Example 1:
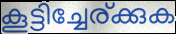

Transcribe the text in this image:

കൂട്ടിച്ചേര്ക്കുക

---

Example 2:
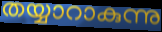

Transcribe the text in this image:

തയ്യാറാകുന്നു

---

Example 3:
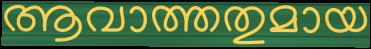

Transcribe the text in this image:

ആവാത്തതുമായ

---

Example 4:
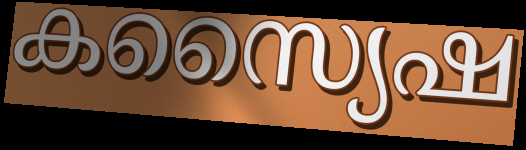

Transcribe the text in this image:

കസ്യൈഷ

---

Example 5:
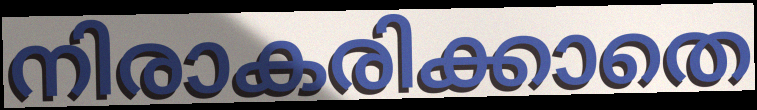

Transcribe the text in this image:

നിരാകരിക്കാതെ